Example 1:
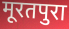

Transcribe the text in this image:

मूरतपुरा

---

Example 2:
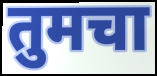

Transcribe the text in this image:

तुमचा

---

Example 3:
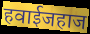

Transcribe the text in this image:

हवाईजहाज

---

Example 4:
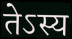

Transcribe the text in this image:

तेऽस्य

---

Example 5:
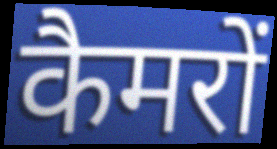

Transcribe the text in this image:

कैमरों